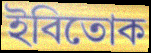
ইবিতোক